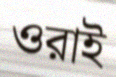
ওরাই